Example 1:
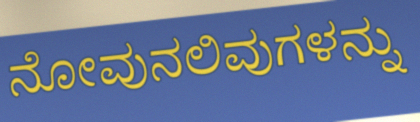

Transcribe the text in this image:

ನೋವುನಲಿವುಗಳನ್ನು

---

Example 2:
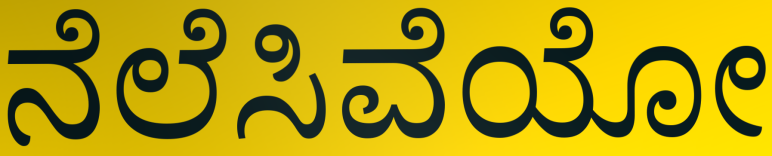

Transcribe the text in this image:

ನೆಲೆಸಿವೆಯೋ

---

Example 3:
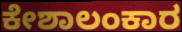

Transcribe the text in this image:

ಕೇಶಾಲಂಕಾರ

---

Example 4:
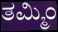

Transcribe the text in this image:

ತಮ್ಮಿಂ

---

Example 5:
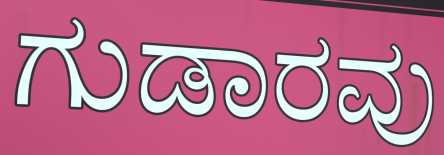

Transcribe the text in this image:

ಗುಡಾರವು